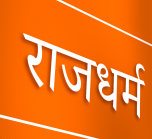
राजधर्म